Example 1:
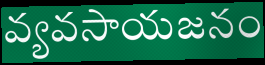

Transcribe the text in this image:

వ్యవసాయజనం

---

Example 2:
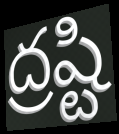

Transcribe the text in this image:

ద్రష్టి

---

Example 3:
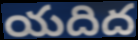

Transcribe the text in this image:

యదిద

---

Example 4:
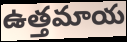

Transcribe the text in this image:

ఉత్తమాయ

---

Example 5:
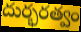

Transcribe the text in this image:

దుర్భరత్వం